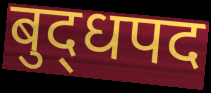
बुद्धपद